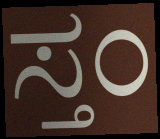
ಸ್ತಂ